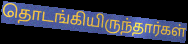
தொடங்கியிருந்தார்கள்